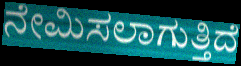
ನೇಮಿಸಲಾಗುತ್ತಿದೆ